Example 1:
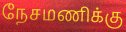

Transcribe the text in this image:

நேசமணிக்கு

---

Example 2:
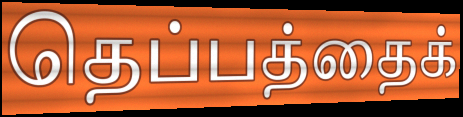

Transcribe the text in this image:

தெப்பத்தைக்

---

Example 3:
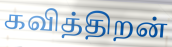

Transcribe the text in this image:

கவித்திறன்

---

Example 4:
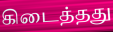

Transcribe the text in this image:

கிடைத்தது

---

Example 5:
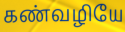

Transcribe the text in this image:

கண்வழியே